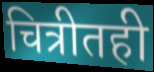
चित्रीतही